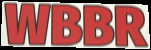
WBBR